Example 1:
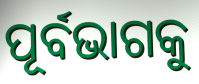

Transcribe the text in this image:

ପୂର୍ବଭାଗକୁ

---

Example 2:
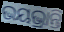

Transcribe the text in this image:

ଭୟଭ୍ରାନ୍ତି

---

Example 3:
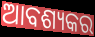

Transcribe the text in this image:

ଆବଶ୍ୟକର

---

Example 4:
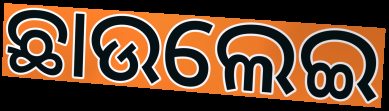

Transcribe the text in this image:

ଛାଉଲେଇ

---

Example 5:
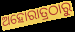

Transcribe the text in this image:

ଅହୋରାତ୍ରଠାରୁ